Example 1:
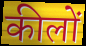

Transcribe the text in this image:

कीलों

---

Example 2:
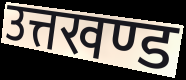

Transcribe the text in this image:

उत्तखण्ड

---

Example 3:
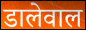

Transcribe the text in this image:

डालेवाल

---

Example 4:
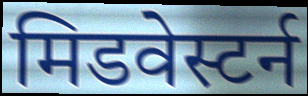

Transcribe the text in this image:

मिडवेस्टर्न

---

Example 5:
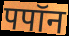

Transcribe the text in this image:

पपॉन